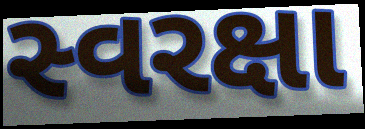
સ્વરક્ષા